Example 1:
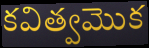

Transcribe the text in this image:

కవిత్వమొక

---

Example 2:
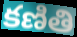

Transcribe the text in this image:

కణితి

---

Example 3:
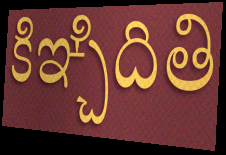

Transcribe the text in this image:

కిఞ్చిదితి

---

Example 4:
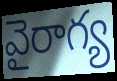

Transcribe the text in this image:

వైరాగ్య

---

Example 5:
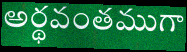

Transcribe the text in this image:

అర్థవంతముగా